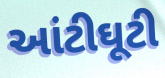
આંટીઘૂટી